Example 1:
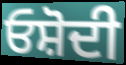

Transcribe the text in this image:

ਓਸ਼ੋਦੀ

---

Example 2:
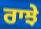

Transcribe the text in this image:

ਰਾਝੇ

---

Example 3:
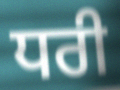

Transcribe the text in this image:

ਧਰੀ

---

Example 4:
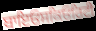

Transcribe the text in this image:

ਬਾਇਓਸਕਿਓਰਿਟੀ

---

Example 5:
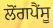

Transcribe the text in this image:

ਲੋਂਗਪੈਂਸੂ